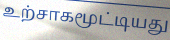
உற்சாகமூட்டியது